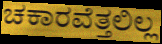
ಚಕಾರವೆತ್ತಲಿಲ್ಲ